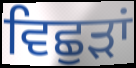
ਵਿਛੁੜਾਂ